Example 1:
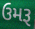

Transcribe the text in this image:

ઉમરૂ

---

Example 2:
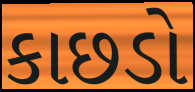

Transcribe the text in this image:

કાછડો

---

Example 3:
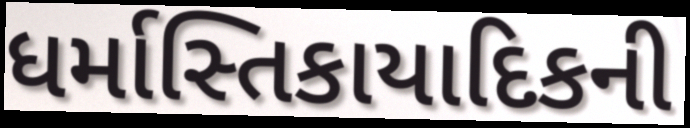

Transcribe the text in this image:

ધર્માસ્તિકાયાદિકની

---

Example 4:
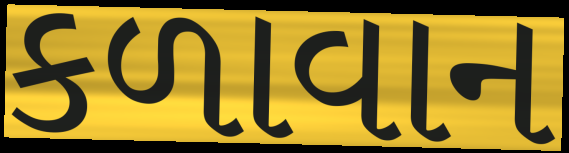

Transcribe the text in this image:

કળાવાન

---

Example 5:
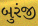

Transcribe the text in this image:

બુરંજી